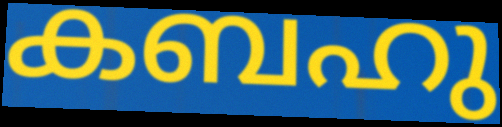
കബഹു